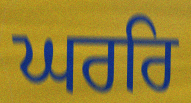
ਘਰਰਿ